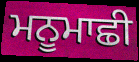
ਮਨੂਮਾਛੀ